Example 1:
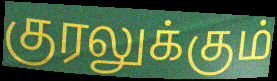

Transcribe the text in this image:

குரலுக்கும்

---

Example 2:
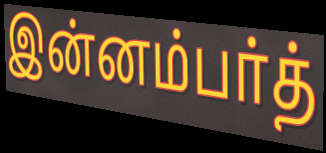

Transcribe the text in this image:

இன்னம்பர்த்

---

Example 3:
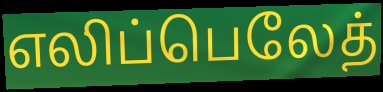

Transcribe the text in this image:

எலிப்பெலேத்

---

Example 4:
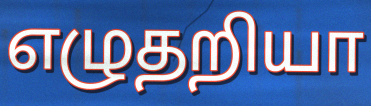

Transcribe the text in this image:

எழுதறியா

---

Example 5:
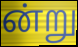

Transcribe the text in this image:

ன்று